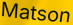
Matson